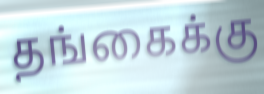
தங்கைக்கு